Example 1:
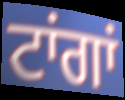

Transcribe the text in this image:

ਟਾਂਗਾਂ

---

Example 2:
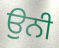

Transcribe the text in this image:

ਉਨੀ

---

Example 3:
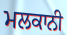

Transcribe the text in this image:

ਮਲਕਾਨੀ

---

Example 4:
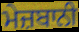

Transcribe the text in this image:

ਮੇਜ਼ਬਾਨੀ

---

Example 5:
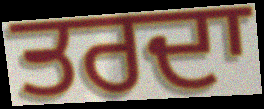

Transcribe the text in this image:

ਤਰਦਾ